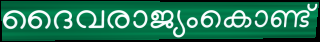
ദൈവരാജ്യംകൊണ്ട്